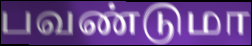
பவண்டுமா